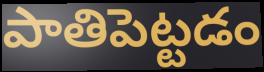
పాతిపెట్టడం